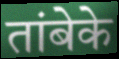
तांबेके